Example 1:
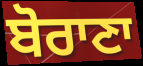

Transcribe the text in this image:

ਬੋਰਾਣਾ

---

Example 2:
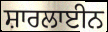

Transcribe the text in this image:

ਸ਼ਾਰਲਾਈਨ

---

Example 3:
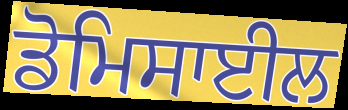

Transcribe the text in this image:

ਡੋਮਿਸਾਈਲ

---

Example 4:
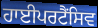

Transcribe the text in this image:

ਹਾਈਪਰਟੈਂਸਿਵ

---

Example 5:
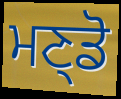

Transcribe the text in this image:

ਮਣ੍ਡੋ